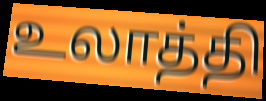
உலாத்தி